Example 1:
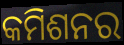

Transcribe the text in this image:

କମିଶନର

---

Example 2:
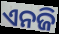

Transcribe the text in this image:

ଏନଜି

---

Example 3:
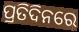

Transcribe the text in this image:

ପ୍ରତିଦିନରେ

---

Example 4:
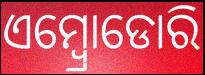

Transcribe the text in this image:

ଏମ୍ବ୍ରୋଡୋରି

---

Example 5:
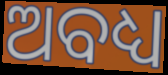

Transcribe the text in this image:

ଅବଧ୍ୟ